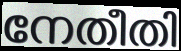
നേതീതി